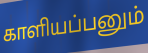
காளியப்பனும்